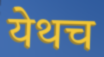
येथच